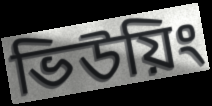
ভিউয়িং